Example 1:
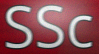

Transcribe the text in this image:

SSc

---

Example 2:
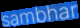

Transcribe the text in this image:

sambhar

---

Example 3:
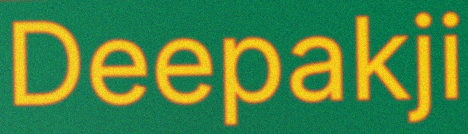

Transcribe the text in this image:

Deepakji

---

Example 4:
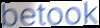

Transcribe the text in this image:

betook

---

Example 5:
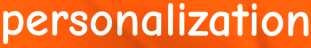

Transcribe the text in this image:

personalization